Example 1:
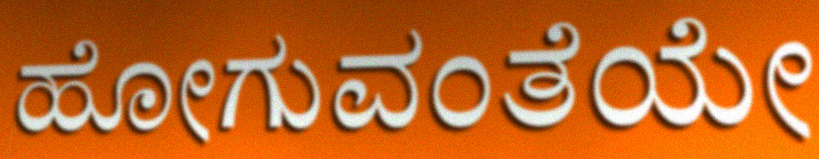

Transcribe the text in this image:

ಹೋಗುವಂತೆಯೇ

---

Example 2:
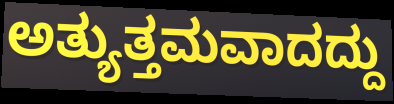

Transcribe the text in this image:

ಅತ್ಯುತ್ತಮವಾದದ್ದು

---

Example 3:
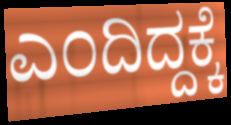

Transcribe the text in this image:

ಎಂದಿದ್ದಕ್ಕೆ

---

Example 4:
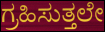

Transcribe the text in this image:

ಗ್ರಹಿಸುತ್ತಲೇ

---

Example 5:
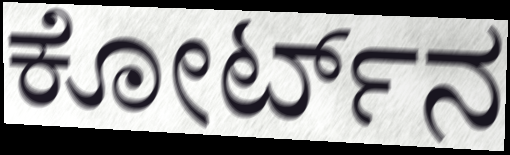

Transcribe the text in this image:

ಕೋರ್ಟ್‌ನ